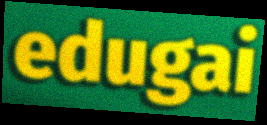
edugai